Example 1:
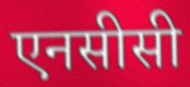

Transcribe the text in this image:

एनसीसी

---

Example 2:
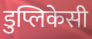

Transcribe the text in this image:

डुप्लिकेसी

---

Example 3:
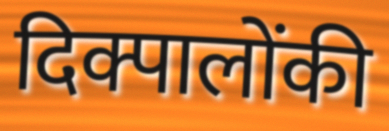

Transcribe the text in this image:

दिक्पालोंकी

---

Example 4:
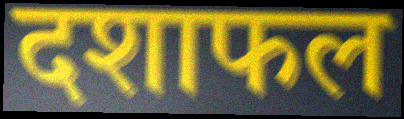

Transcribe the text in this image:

दशाफल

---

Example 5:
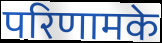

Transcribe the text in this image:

परिणामके